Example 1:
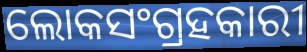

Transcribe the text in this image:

ଲୋକସଂଗ୍ରହକାରୀ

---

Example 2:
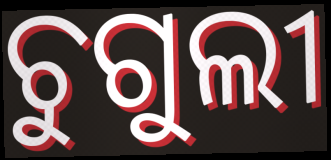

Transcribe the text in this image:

ଚୁଗୁଲୀ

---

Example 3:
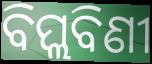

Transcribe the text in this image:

ବିପ୍ଲବିଣୀ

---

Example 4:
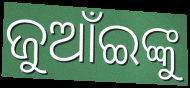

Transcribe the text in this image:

ଜୁଆଁଇଙ୍କୁ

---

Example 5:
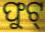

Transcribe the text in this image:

ଫୁଟ୍